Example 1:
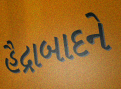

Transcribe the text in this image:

હૈદ્રાબાદને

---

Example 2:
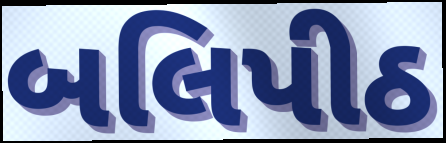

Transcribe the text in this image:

બલિપીઠ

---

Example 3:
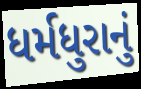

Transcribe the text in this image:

ધર્મધુરાનું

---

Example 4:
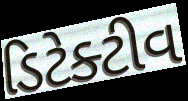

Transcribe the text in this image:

ડિટેક્ટીવ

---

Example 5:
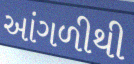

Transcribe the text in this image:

આંગળીથી